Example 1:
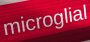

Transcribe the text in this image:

microglial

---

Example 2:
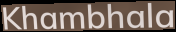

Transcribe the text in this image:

Khambhala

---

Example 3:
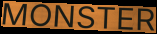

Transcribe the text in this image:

MONSTER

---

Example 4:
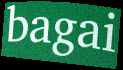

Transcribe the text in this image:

bagai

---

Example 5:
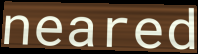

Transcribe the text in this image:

neared